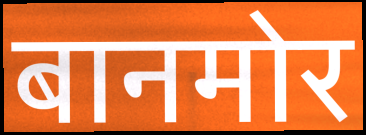
बानमोर